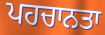
ਪਹਚਾਨਤਾ